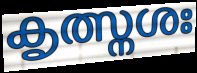
കൃത്സ്നശഃ